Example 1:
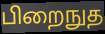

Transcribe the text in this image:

பிறைநுத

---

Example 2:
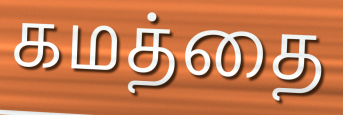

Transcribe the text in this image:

கமத்தை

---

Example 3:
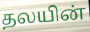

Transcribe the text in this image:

தலயின்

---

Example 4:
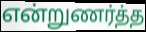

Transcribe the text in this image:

என்றுணர்த்த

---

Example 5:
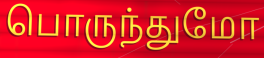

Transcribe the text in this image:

பொருந்துமோ